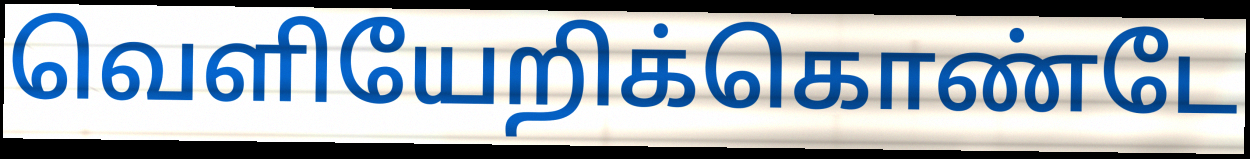
வெளியேறிக்கொண்டே